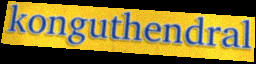
konguthendral